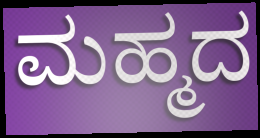
ಮಹ್ಮದ